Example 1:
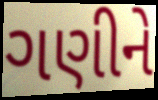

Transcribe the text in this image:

ગણીને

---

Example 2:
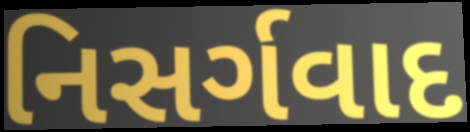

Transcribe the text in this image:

નિસર્ગવાદ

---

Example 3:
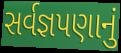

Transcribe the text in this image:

સર્વજ્ઞપણાનું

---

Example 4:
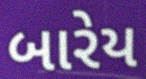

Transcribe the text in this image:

બારેય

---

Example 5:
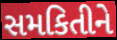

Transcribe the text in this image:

સમકિતીને